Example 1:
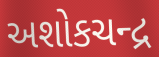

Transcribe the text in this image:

અશોકચન્દ્ર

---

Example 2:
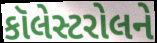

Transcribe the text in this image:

કૉલેસ્ટરોલને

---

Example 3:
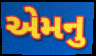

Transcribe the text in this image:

એમનુ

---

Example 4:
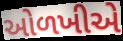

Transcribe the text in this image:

ઓળખીએ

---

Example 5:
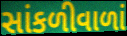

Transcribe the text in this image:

સાંકળીવાળાં